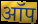
ऑप